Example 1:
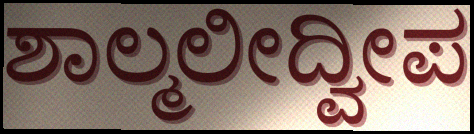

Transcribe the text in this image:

ಶಾಲ್ಮಲೀದ್ವೀಪ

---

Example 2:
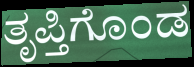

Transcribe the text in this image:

ತೃಪ್ತಿಗೊಂಡ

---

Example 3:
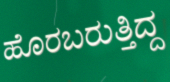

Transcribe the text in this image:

ಹೊರಬರುತ್ತಿದ್ದ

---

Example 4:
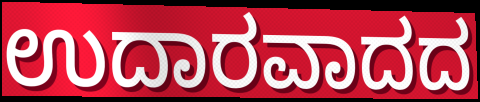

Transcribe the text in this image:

ಉದಾರವಾದದ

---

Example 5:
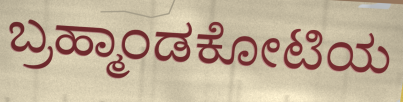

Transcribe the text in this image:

ಬ್ರಹ್ಮಾಂಡಕೋಟಿಯ